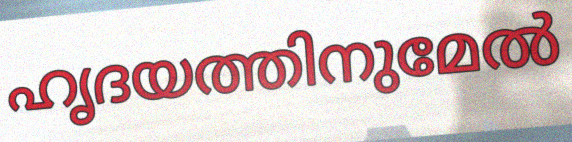
ഹൃദയത്തിനുമേൽ